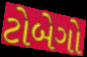
ટોબેગો